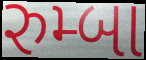
રુમ્બા